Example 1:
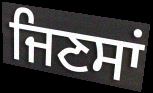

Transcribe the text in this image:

ਜਿਣਸਾਂ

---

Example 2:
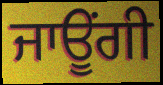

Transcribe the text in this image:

ਜਾਊਂਗੀ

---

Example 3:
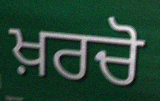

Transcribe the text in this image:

ਖ਼ਰਚੋ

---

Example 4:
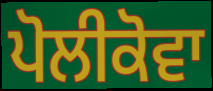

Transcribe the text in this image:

ਪੋਲੀਕੋਵਾ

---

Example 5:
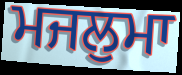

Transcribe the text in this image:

ਮਜਲੁਮਾ